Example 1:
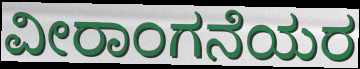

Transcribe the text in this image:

ವೀರಾಂಗನೆಯರ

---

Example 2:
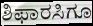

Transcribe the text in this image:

ಶಿಫಾರಸಿಗೂ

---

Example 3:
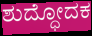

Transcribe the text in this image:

ಶುದ್ಧೋದಕ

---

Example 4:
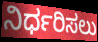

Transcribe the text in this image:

ನಿರ್ಧರಿಸಲು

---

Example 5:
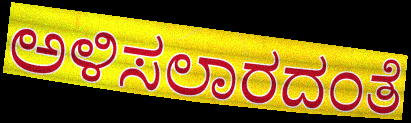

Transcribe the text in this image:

ಅಳಿಸಲಾರದಂತೆ